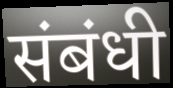
संबंधी